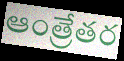
ఆంత్రేతర